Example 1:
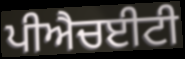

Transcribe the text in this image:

ਪੀਐਚਈਟੀ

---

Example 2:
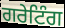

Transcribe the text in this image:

ਗਰੇਟਿੰਗ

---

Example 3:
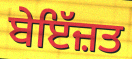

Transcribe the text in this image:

ਬੇਇੱਜ਼ਤ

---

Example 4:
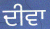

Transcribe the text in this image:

ਦੀਵਾ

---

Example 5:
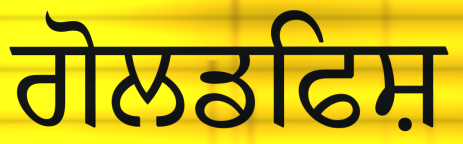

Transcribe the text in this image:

ਗੋਲਡਫਿਸ਼